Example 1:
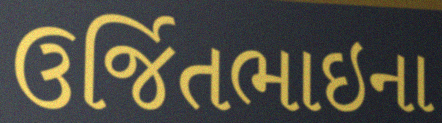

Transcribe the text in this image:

ઉર્જિતભાઇના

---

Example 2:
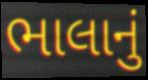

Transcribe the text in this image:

ભાલાનું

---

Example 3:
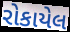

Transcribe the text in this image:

રોકાયેલ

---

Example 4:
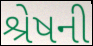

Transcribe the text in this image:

શ્રેષની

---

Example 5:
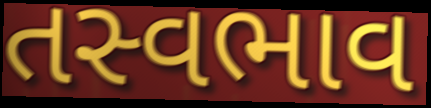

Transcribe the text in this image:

તસ્વભાવ